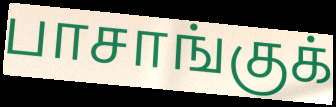
பாசாங்குக்